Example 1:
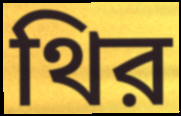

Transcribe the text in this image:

থির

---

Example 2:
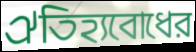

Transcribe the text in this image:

ঐতিহ্যবোধের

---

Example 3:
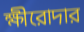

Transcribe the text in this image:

ক্ষীরোদার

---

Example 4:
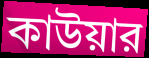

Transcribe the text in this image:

কাউয়ার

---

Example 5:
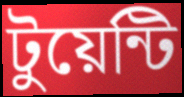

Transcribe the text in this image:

টুয়েন্টি